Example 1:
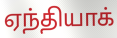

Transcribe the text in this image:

ஏந்தியாக்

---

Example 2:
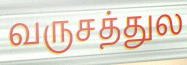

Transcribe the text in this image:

வருசத்துல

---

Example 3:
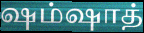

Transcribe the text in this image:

ஷம்ஷாத்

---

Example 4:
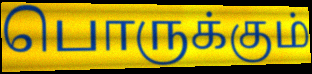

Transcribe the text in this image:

பொருக்கும்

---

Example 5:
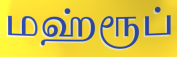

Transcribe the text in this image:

மஹ்ரூப்